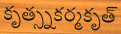
కృత్స్నకర్మకృత్